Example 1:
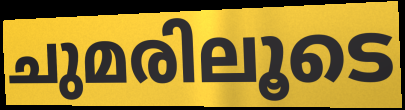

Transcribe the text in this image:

ചുമരിലൂടെ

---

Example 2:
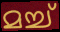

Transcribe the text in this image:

മച്ച്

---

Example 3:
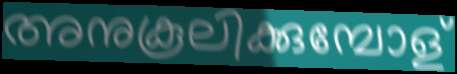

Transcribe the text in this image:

അനുകൂലിക്കുമ്പോള്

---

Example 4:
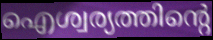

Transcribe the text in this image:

ഐശ്വര്യത്തിന്റെ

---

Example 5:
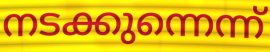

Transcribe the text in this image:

നടക്കുന്നെന്ന്